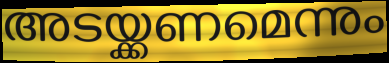
അടയ്ക്കണമെന്നും